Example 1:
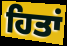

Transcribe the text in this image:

ਹਿਤਾਂ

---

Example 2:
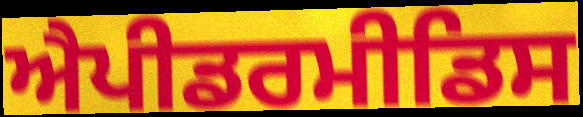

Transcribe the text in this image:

ਐਪੀਡਰਮੀਡਿਸ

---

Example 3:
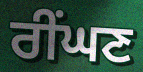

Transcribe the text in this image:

ਰੀਂਘਣ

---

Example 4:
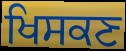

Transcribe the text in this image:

ਖਿਸਕਣ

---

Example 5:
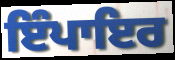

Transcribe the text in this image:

ਇੰਪਾਇਰ